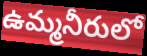
ఉమ్మనీరులో